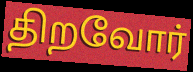
திறவோர்